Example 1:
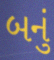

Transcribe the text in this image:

બનું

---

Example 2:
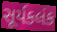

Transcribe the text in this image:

સૂર્યકલંક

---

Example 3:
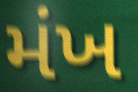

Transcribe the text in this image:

મંખ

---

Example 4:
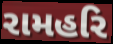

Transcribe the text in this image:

રામહરિ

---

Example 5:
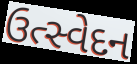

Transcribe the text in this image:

ઉત્સ્વેદન